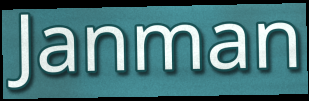
Janman